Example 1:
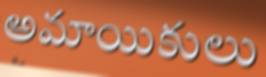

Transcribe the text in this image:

అమాయికులు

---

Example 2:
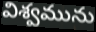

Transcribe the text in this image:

విశ్వమును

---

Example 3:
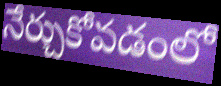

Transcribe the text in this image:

నేర్చుకోవడంలో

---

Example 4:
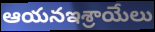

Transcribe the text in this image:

ఆయనఇశ్రాయేలు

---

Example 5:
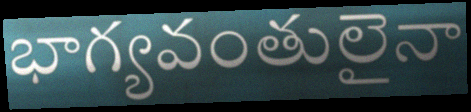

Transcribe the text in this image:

భాగ్యవంతులైనా